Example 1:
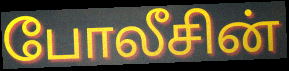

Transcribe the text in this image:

போலீசின்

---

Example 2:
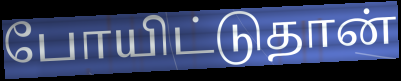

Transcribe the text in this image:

போயிட்டுதான்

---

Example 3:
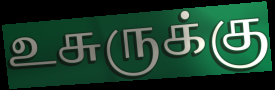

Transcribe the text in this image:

உசுருக்கு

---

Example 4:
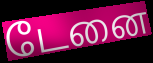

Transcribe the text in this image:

டேனை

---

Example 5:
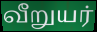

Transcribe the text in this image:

வீறுயர்